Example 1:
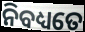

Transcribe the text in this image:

ନିବଧ୍ୟତେ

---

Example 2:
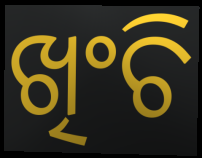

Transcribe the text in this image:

ଖିଂଚି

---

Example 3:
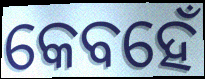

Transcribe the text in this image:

କେବହେଁ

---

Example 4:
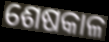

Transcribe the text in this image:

ଶେଷକାଳ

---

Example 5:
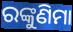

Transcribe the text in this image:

ରଙ୍କୁଣିମା